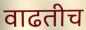
वाढतीच